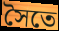
সৈতে